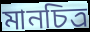
মানচিত্ৰ